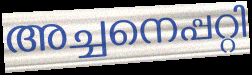
അച്ചനെപ്പറ്റി